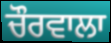
ਚੌਰਵਾਲਾ